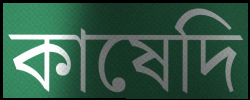
কাষেদি